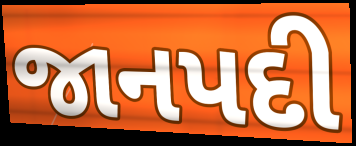
જાનપદી